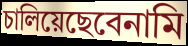
চালিয়েছেবেনামি